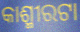
କାଶ୍ମୀରଟା